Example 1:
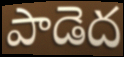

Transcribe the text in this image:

పాడెద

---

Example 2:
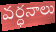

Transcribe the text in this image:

వర్ధనాలు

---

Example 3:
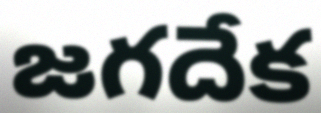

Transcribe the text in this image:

జగదేక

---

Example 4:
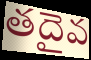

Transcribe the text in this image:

తదైవ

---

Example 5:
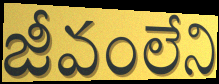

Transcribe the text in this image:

జీవంలేని